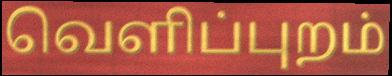
வெளிப்புறம்